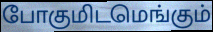
போகுமிடமெங்கும்